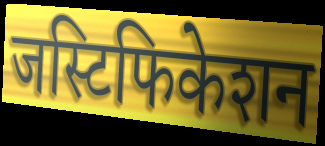
जस्टिफिकेशन